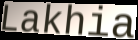
Lakhia